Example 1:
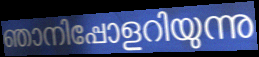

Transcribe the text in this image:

ഞാനിപ്പോളറിയുന്നു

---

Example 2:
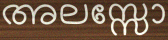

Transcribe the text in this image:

അലസ്സോ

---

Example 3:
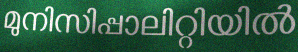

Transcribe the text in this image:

മുനിസിപ്പാലിറ്റിയിൽ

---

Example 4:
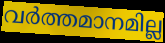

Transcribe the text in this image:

വർത്തമാനമില്ല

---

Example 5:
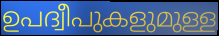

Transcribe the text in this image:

ഉപദ്വീപുകളുമുള്ള